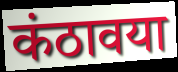
कंठावया